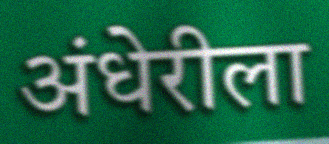
अंधेरीला